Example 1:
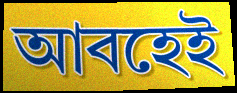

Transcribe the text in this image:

আবহেই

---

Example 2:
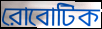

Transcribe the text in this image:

রোবোটিক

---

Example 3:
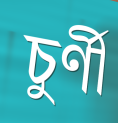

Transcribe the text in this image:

চুর্ণী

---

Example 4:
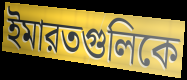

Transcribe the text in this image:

ইমারতগুলিকে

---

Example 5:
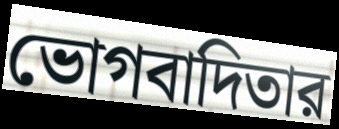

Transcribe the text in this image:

ভোগবাদিতার